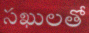
సఖులతో